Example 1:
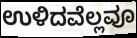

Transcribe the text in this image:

ಉಳಿದವೆಲ್ಲವೂ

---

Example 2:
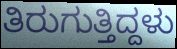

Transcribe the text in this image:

ತಿರುಗುತ್ತಿದ್ದಳು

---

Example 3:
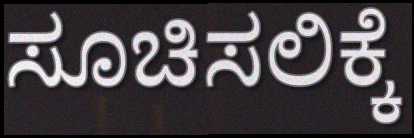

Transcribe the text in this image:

ಸೂಚಿಸಲಿಕ್ಕೆ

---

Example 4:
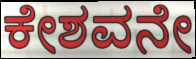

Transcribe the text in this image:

ಕೇಶವನೇ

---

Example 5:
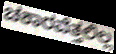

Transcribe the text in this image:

ಚಕಾರವೆತ್ತಲಿಲ್ಲ